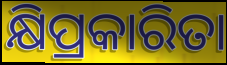
କ୍ଷିପ୍ରକାରିତା